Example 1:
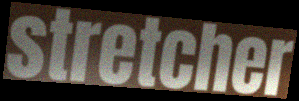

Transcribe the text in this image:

stretcher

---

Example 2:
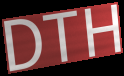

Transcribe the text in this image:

DTH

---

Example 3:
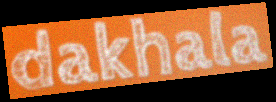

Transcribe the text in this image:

dakhala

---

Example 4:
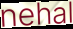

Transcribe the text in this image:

nehal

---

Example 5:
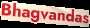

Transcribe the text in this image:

Bhagvandas